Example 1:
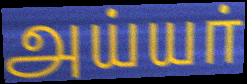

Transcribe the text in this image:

அய்யர்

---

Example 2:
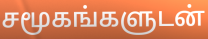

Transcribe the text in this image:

சமூகங்களுடன்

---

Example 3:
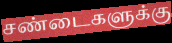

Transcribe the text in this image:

சண்டைகளுக்கு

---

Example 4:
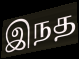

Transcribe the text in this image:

இநத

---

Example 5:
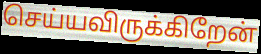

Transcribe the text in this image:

செய்யவிருக்கிறேன்